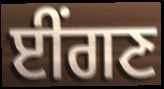
ਈਂਗਣ